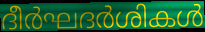
ദീർഘദർശികൾ